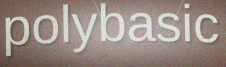
polybasic